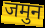
जमुन